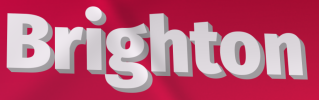
Brighton